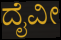
ದೈವೀ